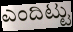
ಎಂದಿಟ್ಟು